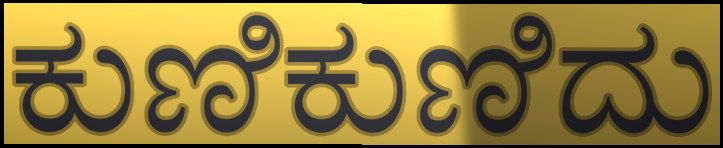
ಕುಣಿಕುಣಿದು